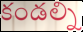
కండల్ని